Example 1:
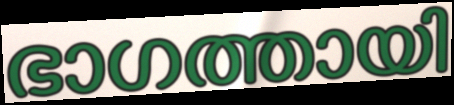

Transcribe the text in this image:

ഭാഗത്തായി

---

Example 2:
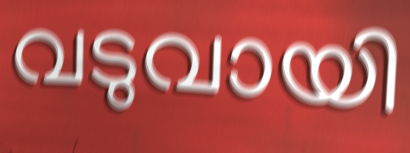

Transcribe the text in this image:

വടുവായി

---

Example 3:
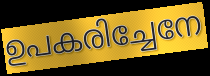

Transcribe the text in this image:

ഉപകരിച്ചേനേ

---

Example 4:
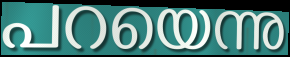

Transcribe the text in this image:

പറയെന്നു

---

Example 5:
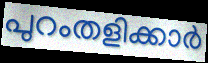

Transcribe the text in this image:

പുറംതളിക്കാർ